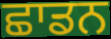
ਛਾਡਨ